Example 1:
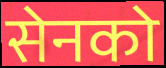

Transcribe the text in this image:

सेनको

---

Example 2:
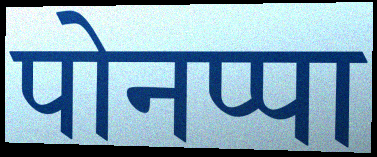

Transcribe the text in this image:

पोनप्पा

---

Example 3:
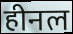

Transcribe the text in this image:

हीनल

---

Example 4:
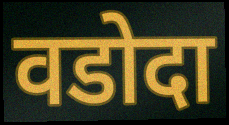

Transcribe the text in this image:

वडोदा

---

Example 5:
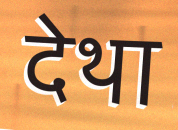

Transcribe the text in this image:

देथा